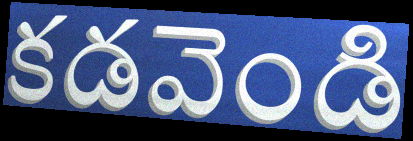
కడవెండి